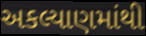
અકલ્યાણમાંથી